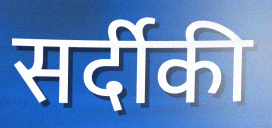
सर्दीकी